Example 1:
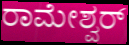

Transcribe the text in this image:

ರಾಮೇಶ್ವರ್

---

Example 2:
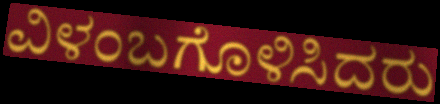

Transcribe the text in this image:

ವಿಳಂಬಗೊಳಿಸಿದರು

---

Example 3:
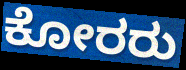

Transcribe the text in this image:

ಕೋರರು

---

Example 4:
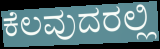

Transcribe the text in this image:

ಕೆಲವುದರಲ್ಲಿ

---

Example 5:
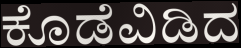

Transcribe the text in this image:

ಕೊಡೆವಿಡಿದ